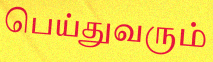
பெய்துவரும்